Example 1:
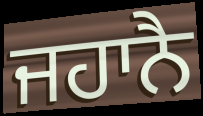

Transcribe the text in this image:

ਜਹਾਨੈ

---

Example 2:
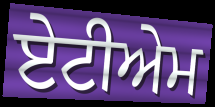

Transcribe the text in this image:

ਏਟੀਅੇਮ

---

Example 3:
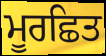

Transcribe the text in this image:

ਮੂਰਛਿਤ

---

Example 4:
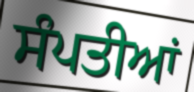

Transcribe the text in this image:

ਸੰਪਤੀਆਂ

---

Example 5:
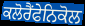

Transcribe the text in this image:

ਕਲੋਰੈਂਫੇਨਿਕੋਲ